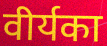
वीर्यका